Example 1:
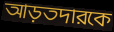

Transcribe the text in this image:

আড়তদারকে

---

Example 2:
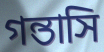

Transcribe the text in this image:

গন্তাসি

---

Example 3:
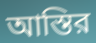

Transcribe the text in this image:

আস্তির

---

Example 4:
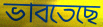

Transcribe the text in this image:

ভাবতেছে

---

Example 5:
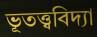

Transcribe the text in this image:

ভূতত্ত্ববিদ্যা